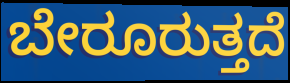
ಬೇರೂರುತ್ತದೆ